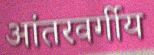
आंतरवर्गीय